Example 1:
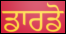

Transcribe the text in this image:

ਡਾਰਡੋ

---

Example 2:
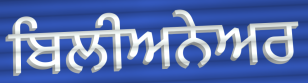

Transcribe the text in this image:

ਬਿਲੀਅਨੇਅਰ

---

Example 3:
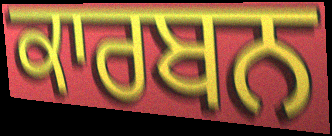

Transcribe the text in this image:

ਕਾਰਬਨ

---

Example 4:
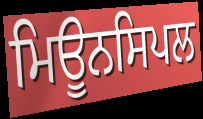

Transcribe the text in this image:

ਮਿਊਨਸਿਪਲ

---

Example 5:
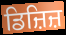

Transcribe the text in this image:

ਡਿਜ਼ਿਜ਼